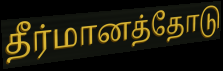
தீர்மானத்தோடு